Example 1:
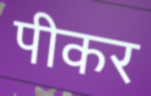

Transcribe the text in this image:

पीकर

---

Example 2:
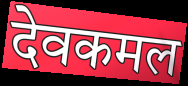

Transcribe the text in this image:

देवकमल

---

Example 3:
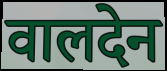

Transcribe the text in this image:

वालदेन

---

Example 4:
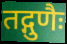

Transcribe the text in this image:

तद्गुणैः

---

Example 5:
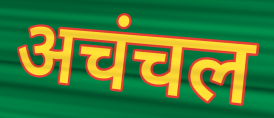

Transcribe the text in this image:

अचंचल